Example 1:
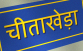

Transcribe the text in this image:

चीताखेड़ा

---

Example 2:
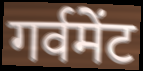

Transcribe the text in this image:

गर्वमेंट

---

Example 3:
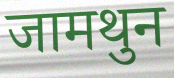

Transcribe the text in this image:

जामथुन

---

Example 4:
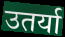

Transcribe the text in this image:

उतर्या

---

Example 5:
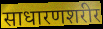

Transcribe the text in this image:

साधारणशरीर